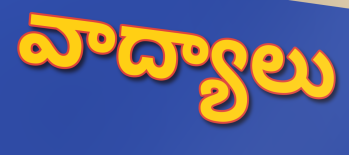
వాద్యాలు